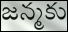
జన్మకు